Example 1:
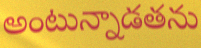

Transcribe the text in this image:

అంటున్నాడతను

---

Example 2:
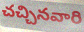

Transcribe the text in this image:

చచ్చినవారి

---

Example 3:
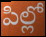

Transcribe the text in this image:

పిల్లో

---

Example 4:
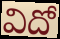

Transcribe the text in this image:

విదో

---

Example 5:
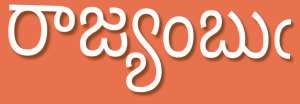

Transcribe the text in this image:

రాజ్యంబుఁ